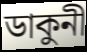
ডাকুনী